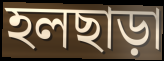
হলছাড়া